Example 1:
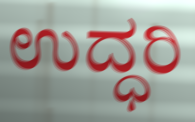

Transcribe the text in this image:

ಉದ್ಧರಿ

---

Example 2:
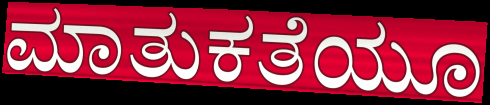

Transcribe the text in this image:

ಮಾತುಕತೆಯೂ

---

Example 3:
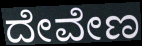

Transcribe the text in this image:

ದೇವೇಣ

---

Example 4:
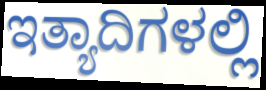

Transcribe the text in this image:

ಇತ್ಯಾದಿಗಳಲ್ಲಿ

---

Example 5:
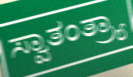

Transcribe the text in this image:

ಸ್ವಾತಂತ್ರ್ಯಾ